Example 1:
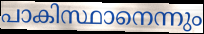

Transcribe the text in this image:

പാകിസ്ഥാനെന്നും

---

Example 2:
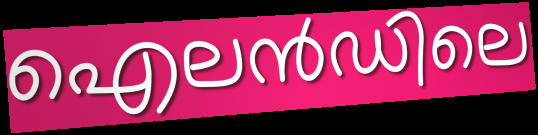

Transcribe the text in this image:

ഐലൻഡിലെ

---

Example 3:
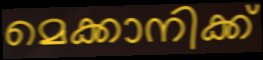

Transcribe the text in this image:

മെക്കാനിക്ക്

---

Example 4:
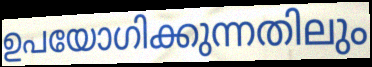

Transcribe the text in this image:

ഉപയോഗിക്കുന്നതിലും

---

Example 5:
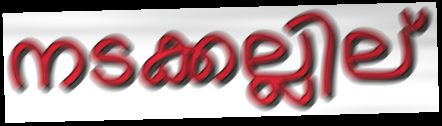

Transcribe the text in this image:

നടക്കല്ലില്